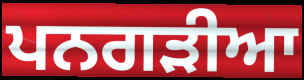
ਪਨਗੜੀਆ